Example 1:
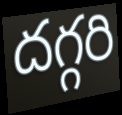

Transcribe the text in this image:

దగ్గరి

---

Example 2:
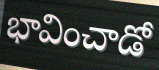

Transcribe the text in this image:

భావించాడో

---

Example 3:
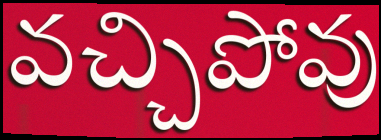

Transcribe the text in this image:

వచ్చిపోవు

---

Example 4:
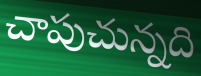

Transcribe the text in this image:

చాపుచున్నది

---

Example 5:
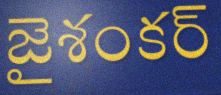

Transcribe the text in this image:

జైశంకర్